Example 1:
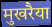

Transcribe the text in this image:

मुखरैया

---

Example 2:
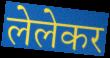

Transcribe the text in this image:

लेलेकर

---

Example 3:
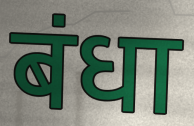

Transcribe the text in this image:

बंधा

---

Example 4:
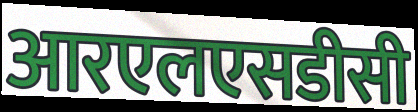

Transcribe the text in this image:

आरएलएसडीसी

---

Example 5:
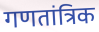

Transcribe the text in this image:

गणतांत्रिक